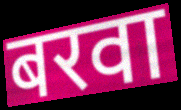
बरवा